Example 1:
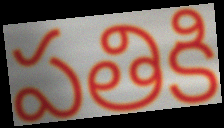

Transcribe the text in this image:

పతికి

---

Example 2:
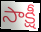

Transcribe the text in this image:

సాక్షీ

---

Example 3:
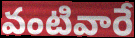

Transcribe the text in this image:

వంటివారే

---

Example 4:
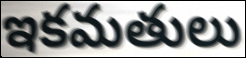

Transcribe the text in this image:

ఇకమతులు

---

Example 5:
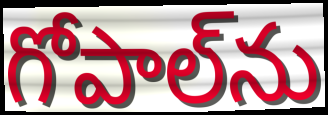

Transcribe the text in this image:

గోపాల్‌ను